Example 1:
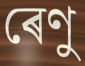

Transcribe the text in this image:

ৰেণু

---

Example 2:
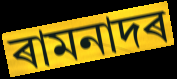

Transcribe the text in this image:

ৰামনাদৰ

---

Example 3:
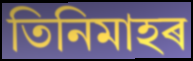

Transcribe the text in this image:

তিনিমাহৰ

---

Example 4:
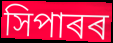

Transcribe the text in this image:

সিপাৰৰ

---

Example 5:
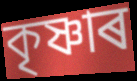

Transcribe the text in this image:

কৃষ্ণাৰ